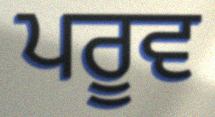
ਪਰੂਵ